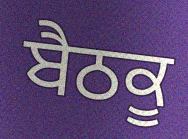
ਬੈਠਕੂ